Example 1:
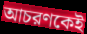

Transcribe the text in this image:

আচরণকেই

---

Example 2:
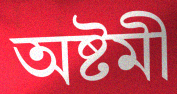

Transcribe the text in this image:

অষ্টমী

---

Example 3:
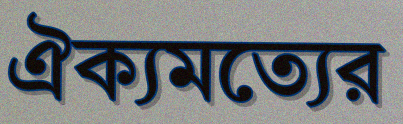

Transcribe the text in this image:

ঐক্যমত্যের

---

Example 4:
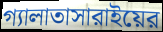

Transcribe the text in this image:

গ্যালাতাসারাইয়ের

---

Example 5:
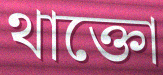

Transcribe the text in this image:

থাক্তো